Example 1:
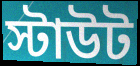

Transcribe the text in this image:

স্টাউট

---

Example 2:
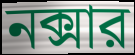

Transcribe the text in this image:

নক্সার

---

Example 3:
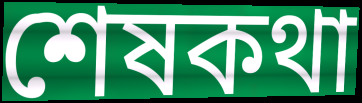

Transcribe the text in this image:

শেষকথা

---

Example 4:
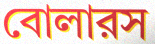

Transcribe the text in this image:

বোলারস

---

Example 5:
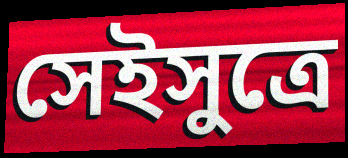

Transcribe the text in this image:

সেইসুত্রে